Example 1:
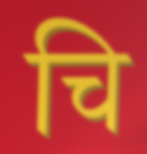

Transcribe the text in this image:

चि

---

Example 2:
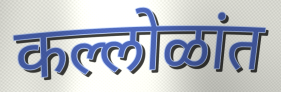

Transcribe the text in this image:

कल्लोळांत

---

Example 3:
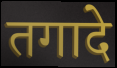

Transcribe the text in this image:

तगादे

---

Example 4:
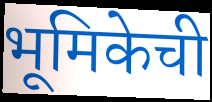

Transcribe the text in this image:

भूमिकेची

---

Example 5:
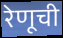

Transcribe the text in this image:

रेणूची